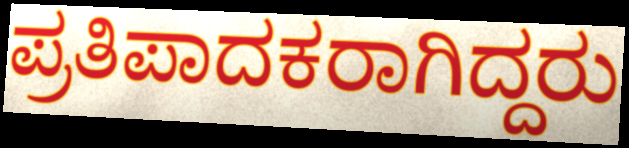
ಪ್ರತಿಪಾದಕರಾಗಿದ್ದರು